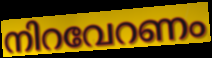
നിറവേറണം